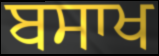
ਬਸਾਖ